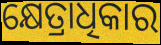
କ୍ଷେତ୍ରାଧିକାର